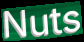
Nuts